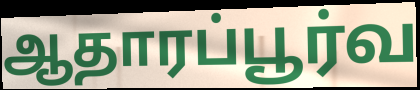
ஆதாரப்பூர்வ